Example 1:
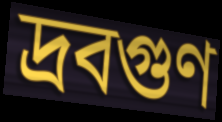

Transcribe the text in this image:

দ্রবগুণ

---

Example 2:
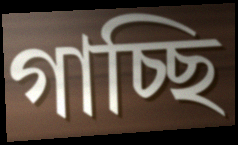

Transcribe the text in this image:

গাচ্ছি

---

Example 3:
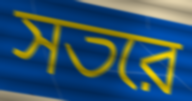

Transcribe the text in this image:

সতরে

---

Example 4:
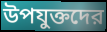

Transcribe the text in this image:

উপযুক্তদের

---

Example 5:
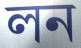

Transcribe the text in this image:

লন